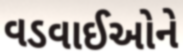
વડવાઈઓને